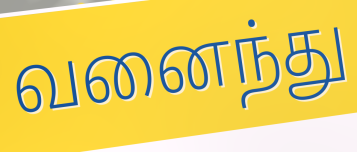
வனைந்து